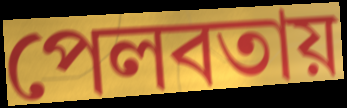
পেলবতায়